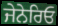
ਜੇਨੇਰਿਓ